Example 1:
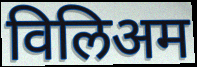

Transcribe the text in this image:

विलिअम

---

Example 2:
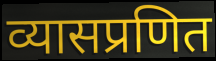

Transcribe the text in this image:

व्यासप्रणित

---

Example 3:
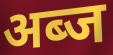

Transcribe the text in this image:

अब्ज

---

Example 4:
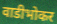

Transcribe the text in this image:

वाडीभोकर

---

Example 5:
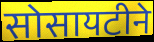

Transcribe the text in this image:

सोसायटीने